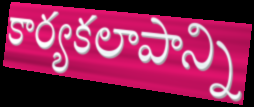
కార్యకలాపాన్ని